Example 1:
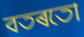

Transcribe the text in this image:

বতৰতো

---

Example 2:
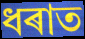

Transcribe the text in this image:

ধৰাত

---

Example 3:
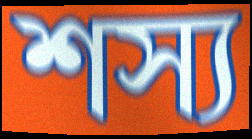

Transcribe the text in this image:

শস্য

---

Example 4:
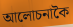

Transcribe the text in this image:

আলোচনাকৈ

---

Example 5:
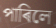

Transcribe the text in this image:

পাৰিলে